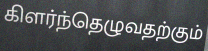
கிளர்ந்தெழுவதற்கும்